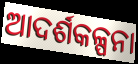
ଆଦର୍ଶକଳ୍ପନା